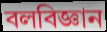
বলবিজ্ঞান